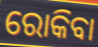
ରୋକିବା